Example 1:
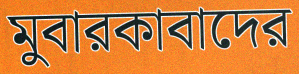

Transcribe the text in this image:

মুবারকাবাদের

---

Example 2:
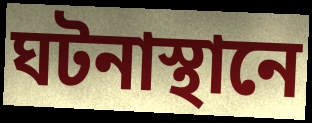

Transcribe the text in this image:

ঘটনাস্থানে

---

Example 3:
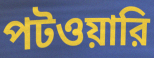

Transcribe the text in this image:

পটওয়ারি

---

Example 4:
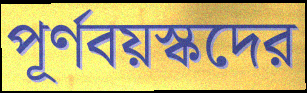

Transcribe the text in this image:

পূর্ণবয়স্কদের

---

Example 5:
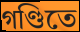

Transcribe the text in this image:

গণ্ডিতে